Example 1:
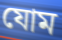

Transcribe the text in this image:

যোম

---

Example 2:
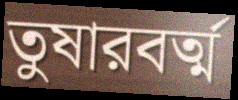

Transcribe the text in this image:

তুষারবর্ত্ম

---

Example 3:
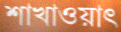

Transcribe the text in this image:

শাখাওয়াৎ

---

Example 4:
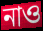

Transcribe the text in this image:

নাও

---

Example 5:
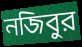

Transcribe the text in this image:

নজিবুর